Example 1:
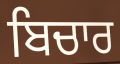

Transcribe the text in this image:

ਬਿਚਾਰ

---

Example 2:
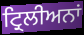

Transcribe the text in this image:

ਟ੍ਰਿਲੀਅਨਾਂ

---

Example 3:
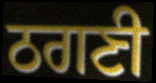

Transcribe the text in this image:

ਠਗਣੀ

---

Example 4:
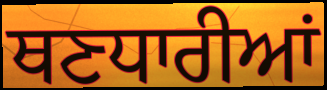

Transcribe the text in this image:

ਥਣਧਾਰੀਆਂ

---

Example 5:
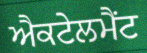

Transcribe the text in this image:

ਐਕਟੇਲਮੈਂਟ